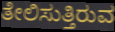
ತೇಲಿಸುತ್ತಿರುವ